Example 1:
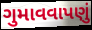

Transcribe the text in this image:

ગુમાવવાપણું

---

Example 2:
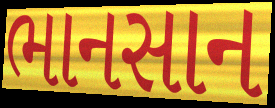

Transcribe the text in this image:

ભાનસાન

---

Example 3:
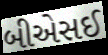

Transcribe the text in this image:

બીએસઈ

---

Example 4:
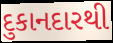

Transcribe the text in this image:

દુકાનદારથી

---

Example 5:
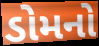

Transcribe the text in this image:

ડોમનો